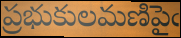
ప్రభుకులమణిపైఁ